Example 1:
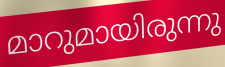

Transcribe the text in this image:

മാറുമായിരുന്നു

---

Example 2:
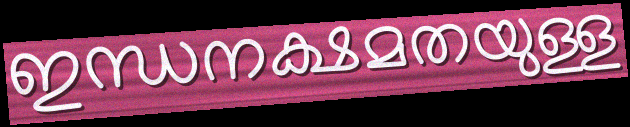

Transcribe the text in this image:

ഇന്ധനക്ഷമതയുള്ള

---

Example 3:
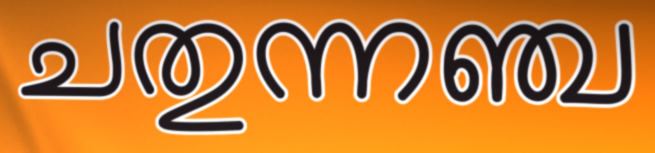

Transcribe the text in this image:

ചതുന്നഞ്ച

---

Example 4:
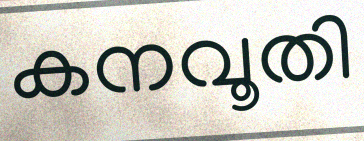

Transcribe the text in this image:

കനവൂതി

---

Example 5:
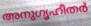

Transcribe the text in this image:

അനുഗൃഹീതർ